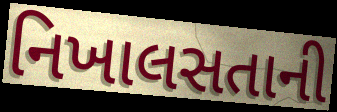
નિખાલસતાની